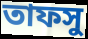
তাফসু